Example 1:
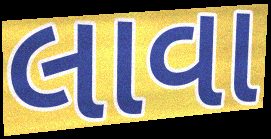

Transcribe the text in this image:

લાવા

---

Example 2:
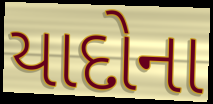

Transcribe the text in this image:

યાદોના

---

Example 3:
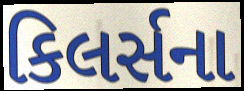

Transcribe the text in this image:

કિલર્સના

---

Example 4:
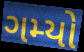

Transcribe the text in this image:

ગમ્યો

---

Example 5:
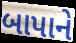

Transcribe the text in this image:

બાપાને